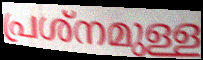
പ്രശ്നമുള്ള